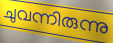
ചുവന്നിരുന്നു